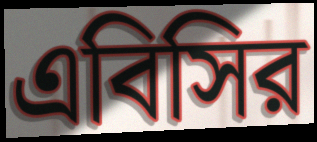
এবিসির